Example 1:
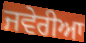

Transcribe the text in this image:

ਜਵੇਰੀਆ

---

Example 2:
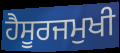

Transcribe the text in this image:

ਹੈਸੂਰਜਮੁਖੀ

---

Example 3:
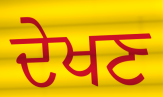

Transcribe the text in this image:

ਦੇਖਣ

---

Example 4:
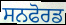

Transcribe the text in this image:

ਸਨਫੋਰਡ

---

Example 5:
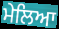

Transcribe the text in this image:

ਮੇਲਿਆ